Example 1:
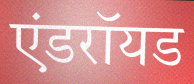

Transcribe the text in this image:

एंडरॉयड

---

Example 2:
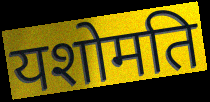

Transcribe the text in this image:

यशोमति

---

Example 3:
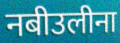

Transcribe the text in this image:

नबीउलीना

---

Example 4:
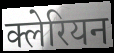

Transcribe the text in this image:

क्लेरियन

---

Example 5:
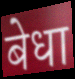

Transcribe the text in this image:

बेधा